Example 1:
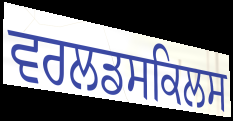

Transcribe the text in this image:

ਵਰਲਡਸਕਿਲਸ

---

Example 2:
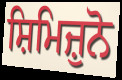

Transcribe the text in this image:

ਸ਼ਿਮਿਜ਼ੁਨੋ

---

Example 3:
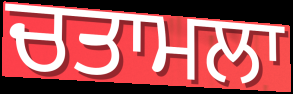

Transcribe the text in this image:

ਚਤਾਮਲਾ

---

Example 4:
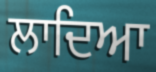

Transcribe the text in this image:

ਲਾਦਿਆ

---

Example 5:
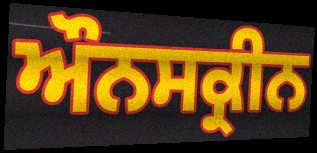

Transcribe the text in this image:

ਔਨਸਕ੍ਰੀਨ